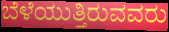
ಬೆಳೆಯುತ್ತಿರುವವರು